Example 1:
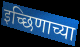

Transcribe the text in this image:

इच्छिणाच्या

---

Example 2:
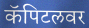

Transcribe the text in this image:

कॅपिटलवर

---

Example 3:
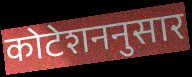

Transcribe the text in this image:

कोटेशननुसार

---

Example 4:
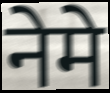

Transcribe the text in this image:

नेमे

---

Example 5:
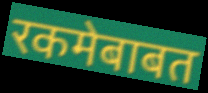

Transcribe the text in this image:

रकमेबाबत